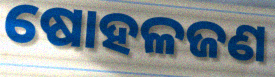
ଷୋହଳଜଣ